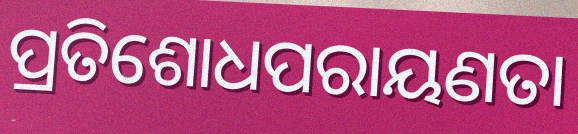
ପ୍ରତିଶୋଧପରାୟଣତା